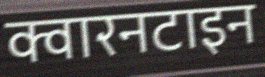
क्वारनटाइन